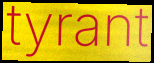
tyrant